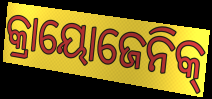
କ୍ରାୟୋଜେନିକ୍